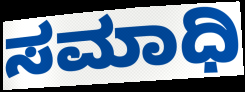
ಸಮಾಧಿ